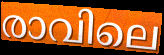
രാവിലെ